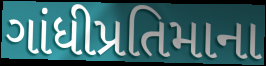
ગાંધીપ્રતિમાના